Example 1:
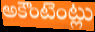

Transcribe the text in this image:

అకౌంటెంట్లు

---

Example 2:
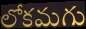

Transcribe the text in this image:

లోకమగు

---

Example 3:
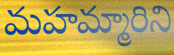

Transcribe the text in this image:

మహమ్మారిని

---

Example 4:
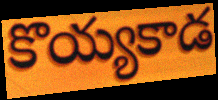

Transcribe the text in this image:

కొయ్యకాడ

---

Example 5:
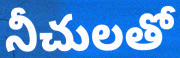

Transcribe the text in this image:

నీచులతో